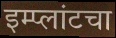
इम्प्लांटचा